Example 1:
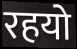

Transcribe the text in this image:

रहयो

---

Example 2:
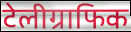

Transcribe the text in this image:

टेलीग्राफिक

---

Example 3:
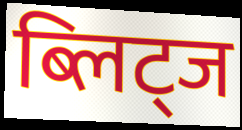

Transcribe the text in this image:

ब्लिट्ज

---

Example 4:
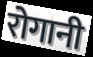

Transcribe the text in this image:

रोगानी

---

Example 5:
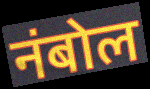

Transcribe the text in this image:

नंबोल